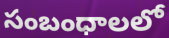
సంబంధాలలో